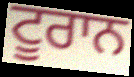
ਟੂਰਾਨ